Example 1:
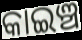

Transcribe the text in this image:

କାଇଞ୍ଚ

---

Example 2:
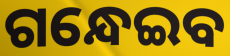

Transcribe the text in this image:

ଗନ୍ଧେଇବ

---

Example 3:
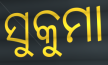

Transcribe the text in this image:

ସୁକୁମା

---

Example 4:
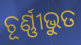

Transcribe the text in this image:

ଚୂର୍ଣ୍ଣୀଭୁତ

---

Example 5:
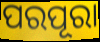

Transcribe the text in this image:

ପରପୂରା